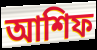
আশিফ